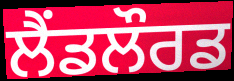
ਲੈਂਡਲੌਰਡ